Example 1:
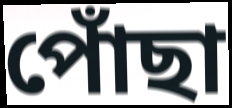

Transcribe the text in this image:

পোঁছা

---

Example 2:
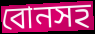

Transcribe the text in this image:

বোনসহ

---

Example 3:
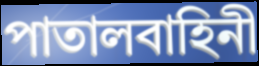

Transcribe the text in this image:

পাতালবাহিনী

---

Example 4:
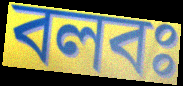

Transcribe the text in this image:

বলবঃ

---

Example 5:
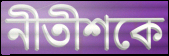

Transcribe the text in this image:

নীতীশকে